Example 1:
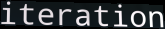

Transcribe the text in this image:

iteration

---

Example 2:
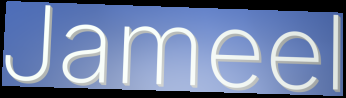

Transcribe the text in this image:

Jameel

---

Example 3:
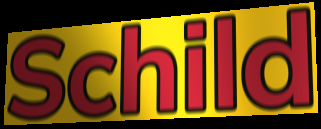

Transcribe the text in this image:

Schild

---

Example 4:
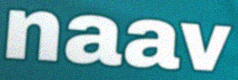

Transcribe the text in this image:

naav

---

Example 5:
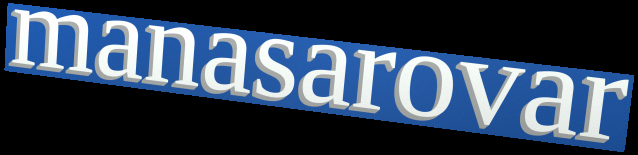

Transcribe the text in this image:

manasarovar